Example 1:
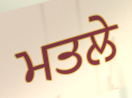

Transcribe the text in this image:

ਮਤਲੇ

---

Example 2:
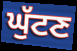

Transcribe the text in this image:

ਘੁੱਟਣ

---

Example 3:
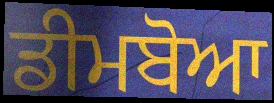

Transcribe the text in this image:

ਡੀਮਬੋਆ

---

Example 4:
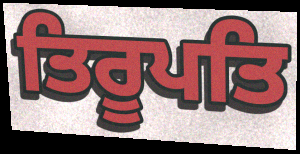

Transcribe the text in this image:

ਤਿਰੂਪਤਿ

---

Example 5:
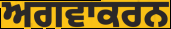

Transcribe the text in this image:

ਅਗਵਾਕਰਨ